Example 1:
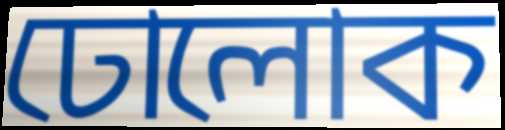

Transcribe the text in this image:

ঢোলোক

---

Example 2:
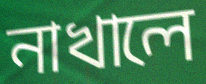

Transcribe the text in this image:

নাখালে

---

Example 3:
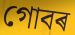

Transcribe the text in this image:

গোবৰ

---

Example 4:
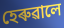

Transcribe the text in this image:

হেৰুৱালে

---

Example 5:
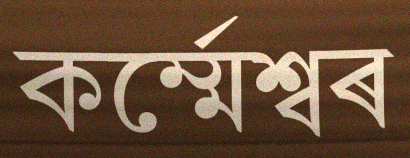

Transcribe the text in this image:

কৰ্ম্মেশ্বৰ